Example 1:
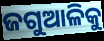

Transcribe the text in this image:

ଜଗୁଆଳିକୁ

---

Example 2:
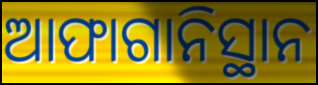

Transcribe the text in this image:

ଆଫାଗାନିସ୍ଥାନ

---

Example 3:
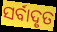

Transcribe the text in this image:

ସର୍ବାଦୃତ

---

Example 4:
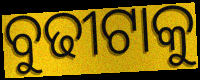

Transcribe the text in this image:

ବୁଢୀଟାକୁ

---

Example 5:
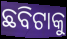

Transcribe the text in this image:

ଛବିଟାକୁ